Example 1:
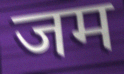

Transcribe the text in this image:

जम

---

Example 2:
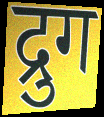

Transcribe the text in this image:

द्रुग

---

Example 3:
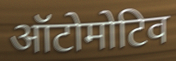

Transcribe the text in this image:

ऑटोमोटिव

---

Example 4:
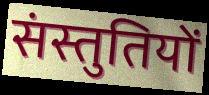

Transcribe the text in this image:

संस्तुतियों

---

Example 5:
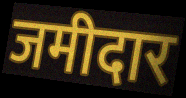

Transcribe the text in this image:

जमीदार